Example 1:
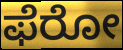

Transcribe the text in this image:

ಫೆರೋ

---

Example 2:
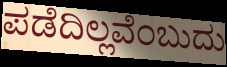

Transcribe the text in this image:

ಪಡೆದಿಲ್ಲವೆಂಬುದು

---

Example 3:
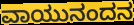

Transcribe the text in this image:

ವಾಯುನಂದನ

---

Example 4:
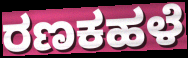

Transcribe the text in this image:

ರಣಕಹಳೆ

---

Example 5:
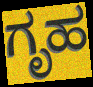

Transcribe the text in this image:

ಗೃಹ